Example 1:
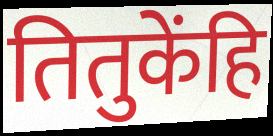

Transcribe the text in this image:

तितुकेंहि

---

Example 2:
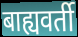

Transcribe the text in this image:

बाह्यवर्ती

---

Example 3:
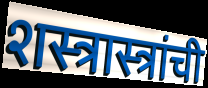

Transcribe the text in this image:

शस्त्रास्त्रांची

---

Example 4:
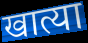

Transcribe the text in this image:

खात्या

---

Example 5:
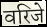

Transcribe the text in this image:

वरिजे